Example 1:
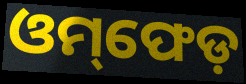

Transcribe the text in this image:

ଓମ୍‌ଫେଡ଼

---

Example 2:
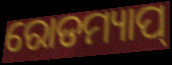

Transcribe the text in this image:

ରୋଡମ୍ୟାପ୍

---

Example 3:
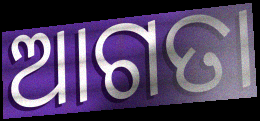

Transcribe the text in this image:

ଆଗତା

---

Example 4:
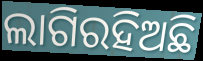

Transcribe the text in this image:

ଲାଗିରହିଅଛି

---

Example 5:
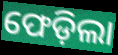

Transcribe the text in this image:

ଫେଡ଼ିଲା